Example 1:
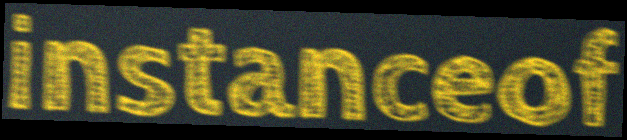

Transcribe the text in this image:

instanceof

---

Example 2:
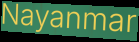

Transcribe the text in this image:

Nayanmar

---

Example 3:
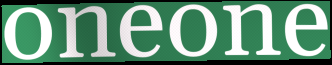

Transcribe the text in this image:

oneone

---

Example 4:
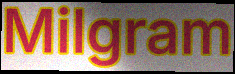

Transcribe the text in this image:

Milgram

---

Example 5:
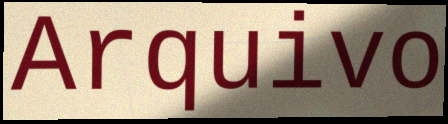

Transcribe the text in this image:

Arquivo